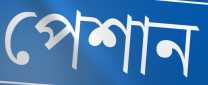
পেশান